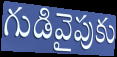
గుడివైపుకు